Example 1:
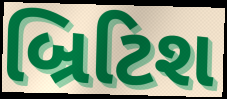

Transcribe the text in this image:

બ્રિટિશ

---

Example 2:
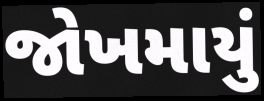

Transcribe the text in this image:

જોખમાયું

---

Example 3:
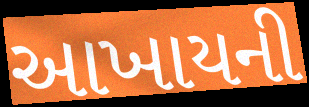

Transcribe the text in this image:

આખાયની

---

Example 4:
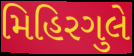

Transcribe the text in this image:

મિહિરગુલે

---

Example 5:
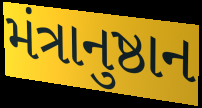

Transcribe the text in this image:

મંત્રાનુષ્ઠાન